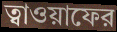
ত্বাওয়াফের